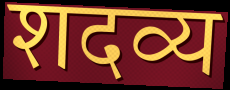
शदव्य